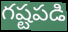
గష్టపడి